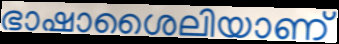
ഭാഷാശൈലിയാണ്